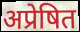
अप्रेषित